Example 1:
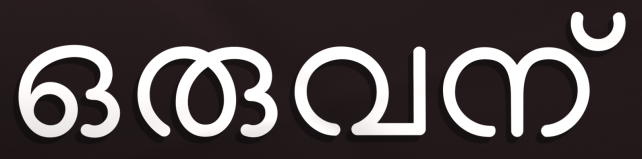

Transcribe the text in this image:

ഒരുവന്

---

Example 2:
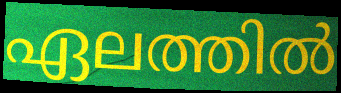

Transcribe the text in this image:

ഏലത്തിൽ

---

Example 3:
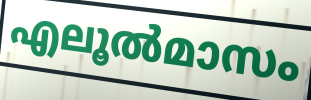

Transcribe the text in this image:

എലൂൽമാസം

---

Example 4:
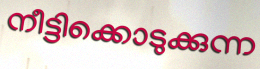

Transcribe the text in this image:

നീട്ടിക്കൊടുക്കുന്ന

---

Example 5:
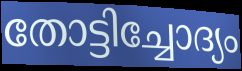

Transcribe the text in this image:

തോട്ടിച്ചോദ്യം